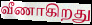
வீணாகிறது